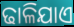
ଢାଳିଯାଏ